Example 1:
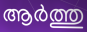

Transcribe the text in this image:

ആർത്തു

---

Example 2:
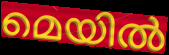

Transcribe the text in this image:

മെയിൽ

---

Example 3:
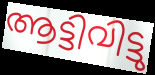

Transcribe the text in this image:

ആട്ടിവിട്ടു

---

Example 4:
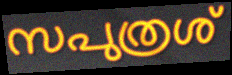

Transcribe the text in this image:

സപുത്രശ്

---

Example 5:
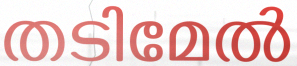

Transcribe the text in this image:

തടിമേൽ